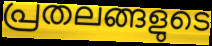
പ്രതലങ്ങളുടെ